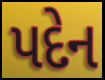
પદેન